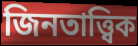
জিনতাত্ত্বিক